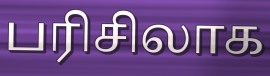
பரிசிலாக